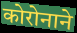
कोरोनाने